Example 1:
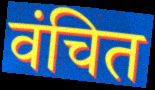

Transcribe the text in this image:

वंचित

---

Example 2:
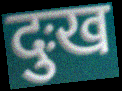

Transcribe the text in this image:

दुःख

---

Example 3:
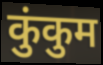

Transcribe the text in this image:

कुंकुम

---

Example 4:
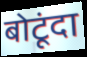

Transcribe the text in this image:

बोटूंदा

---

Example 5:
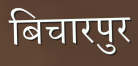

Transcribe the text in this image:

बिचारपुर